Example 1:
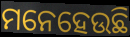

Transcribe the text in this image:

ମନେହେଉଛି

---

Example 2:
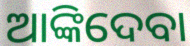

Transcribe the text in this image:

ଆଙ୍କିଦେବା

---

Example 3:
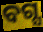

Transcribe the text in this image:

ବଗ୍ସ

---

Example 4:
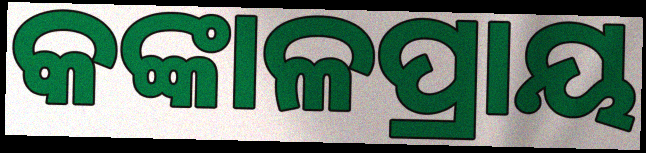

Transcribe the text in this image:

କଙ୍କାଳପ୍ରାୟ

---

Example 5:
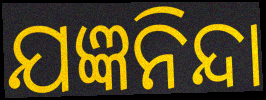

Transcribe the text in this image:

ଯଜ୍ଞନିନ୍ଦା